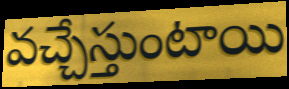
వచ్చేస్తుంటాయి